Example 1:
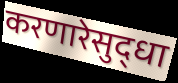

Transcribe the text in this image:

करणारेसुद्धा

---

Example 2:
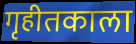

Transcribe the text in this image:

गृहीतकाला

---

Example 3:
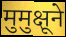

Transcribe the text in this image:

मुमुक्षूने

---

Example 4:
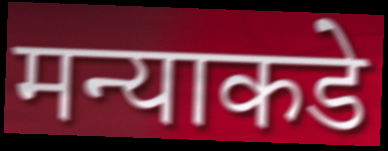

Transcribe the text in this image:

मन्याकडे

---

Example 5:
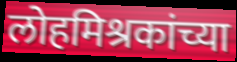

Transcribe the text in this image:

लोहमिश्रकांच्या